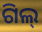
ଗିଲ୍